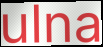
ulna